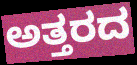
ಅತ್ತರದ